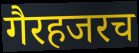
गैरहजरच